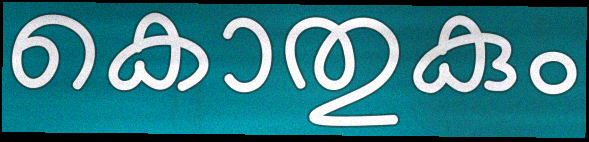
കൊതുകും